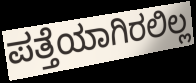
ಪತ್ತೆಯಾಗಿರಲಿಲ್ಲ